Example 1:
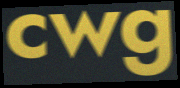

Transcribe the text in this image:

cwg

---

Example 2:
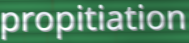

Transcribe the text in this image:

propitiation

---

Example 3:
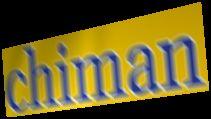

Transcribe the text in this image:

chiman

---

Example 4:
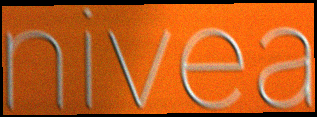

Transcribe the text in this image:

nivea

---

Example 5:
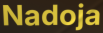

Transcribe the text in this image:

Nadoja